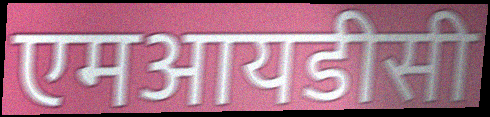
एमआयडीसी